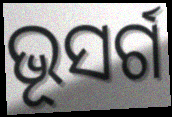
ଭୂସର୍ଗ